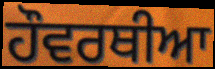
ਹੌਵਰਥੀਆ